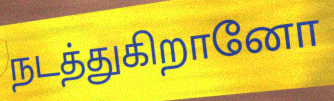
நடத்துகிறானோ